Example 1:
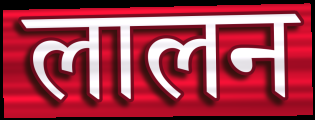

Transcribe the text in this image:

लालन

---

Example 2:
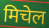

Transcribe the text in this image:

मिचेल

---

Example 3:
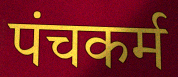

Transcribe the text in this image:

पंचकर्म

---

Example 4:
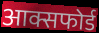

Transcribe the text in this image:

आक्सफोर्ड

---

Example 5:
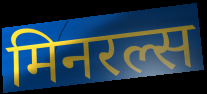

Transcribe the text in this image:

मिनरल्स